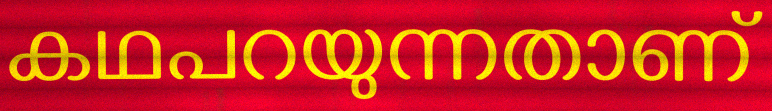
കഥപറയുന്നതാണ്